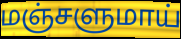
மஞ்சளுமாய்